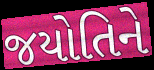
જયોતિને